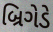
બ્રિગેડે